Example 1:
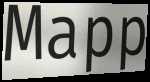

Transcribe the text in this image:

Mapp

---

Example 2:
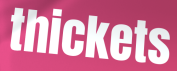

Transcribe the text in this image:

thickets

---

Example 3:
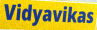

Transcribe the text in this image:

Vidyavikas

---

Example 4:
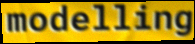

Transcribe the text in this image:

modelling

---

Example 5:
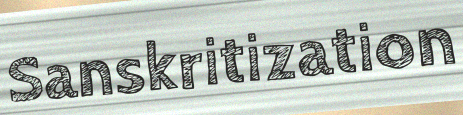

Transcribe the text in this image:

Sanskritization